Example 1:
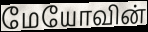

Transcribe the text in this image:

மேயோவின்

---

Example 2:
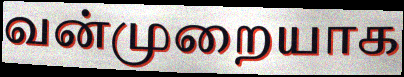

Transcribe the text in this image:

வன்முறையாக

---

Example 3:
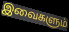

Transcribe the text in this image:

இவைகளும்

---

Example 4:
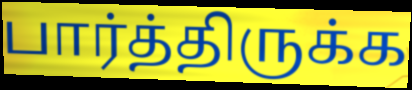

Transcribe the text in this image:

பார்த்திருக்க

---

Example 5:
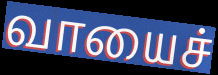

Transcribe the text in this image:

வாயைச்